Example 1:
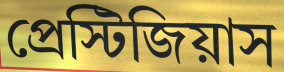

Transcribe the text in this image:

প্রেস্টিজিয়াস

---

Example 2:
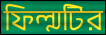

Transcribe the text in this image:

ফিল্মটির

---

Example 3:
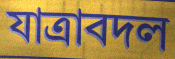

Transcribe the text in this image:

যাত্রাবদল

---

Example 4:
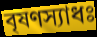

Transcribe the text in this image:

বৃষণস্যাধঃ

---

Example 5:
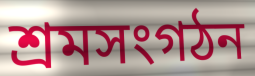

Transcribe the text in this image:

শ্রমসংগঠন